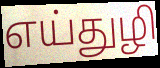
எய்துழி